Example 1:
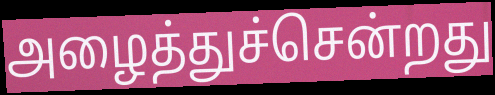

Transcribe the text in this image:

அழைத்துச்சென்றது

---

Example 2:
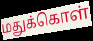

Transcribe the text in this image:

மதுக்கொள்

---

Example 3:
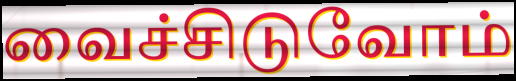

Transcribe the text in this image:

வைச்சிடுவோம்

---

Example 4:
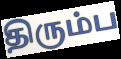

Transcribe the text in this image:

திரும்ப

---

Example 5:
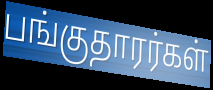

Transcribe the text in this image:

பங்குதாரர்கள்